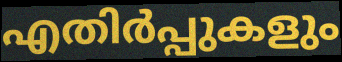
എതിർപ്പുകളും